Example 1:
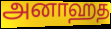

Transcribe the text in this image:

அனாஹத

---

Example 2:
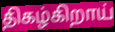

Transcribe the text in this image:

திகழ்கிறாய்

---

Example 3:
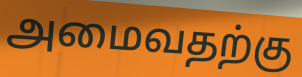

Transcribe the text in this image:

அமைவதற்கு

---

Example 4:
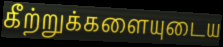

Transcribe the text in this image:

கீற்றுக்களையுடைய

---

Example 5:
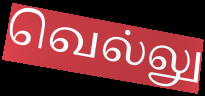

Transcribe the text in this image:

வெல்லு